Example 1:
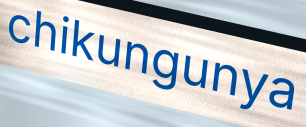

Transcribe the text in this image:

chikungunya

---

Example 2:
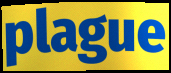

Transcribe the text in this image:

plague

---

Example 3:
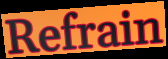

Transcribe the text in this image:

Refrain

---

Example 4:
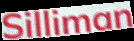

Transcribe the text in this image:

Silliman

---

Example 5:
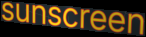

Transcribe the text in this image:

sunscreen